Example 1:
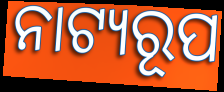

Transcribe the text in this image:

ନାଟ୍ୟରୂପ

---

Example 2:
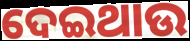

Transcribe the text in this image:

ଦେଇଥାଉ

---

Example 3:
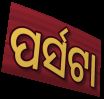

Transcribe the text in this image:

ପର୍ସଟା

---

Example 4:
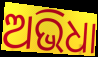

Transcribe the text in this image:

ଅଭିଧା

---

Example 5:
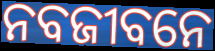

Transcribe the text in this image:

ନବଜୀବନେ